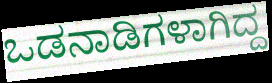
ಒಡನಾಡಿಗಳಾಗಿದ್ದ